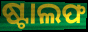
ଷ୍ଟାଲଫ